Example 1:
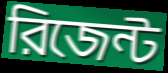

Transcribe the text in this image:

রিজেন্ট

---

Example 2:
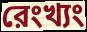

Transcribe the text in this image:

রেংখ্যং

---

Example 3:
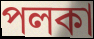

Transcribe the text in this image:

পলকা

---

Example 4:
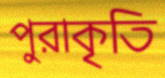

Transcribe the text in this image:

পুরাকৃতি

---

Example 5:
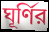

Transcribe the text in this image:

ঘূর্ণির